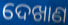
ଦେଖାଣ